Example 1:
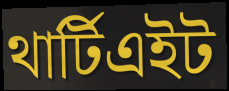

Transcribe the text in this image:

থার্টিএইট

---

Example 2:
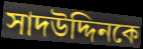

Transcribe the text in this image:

সাদউদ্দিনকে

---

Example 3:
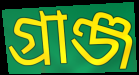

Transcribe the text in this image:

গ্রাঞ্জ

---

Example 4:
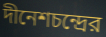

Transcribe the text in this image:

দীনেশচন্দ্রের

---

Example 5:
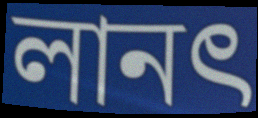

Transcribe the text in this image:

লানৎ